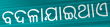
ବଦଳାଯାଇଥାଏ